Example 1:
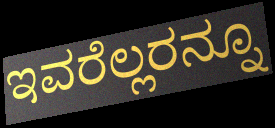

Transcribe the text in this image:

ಇವರೆಲ್ಲರನ್ನೂ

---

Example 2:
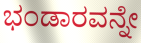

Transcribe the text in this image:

ಭಂಡಾರವನ್ನೇ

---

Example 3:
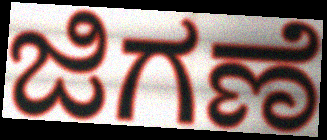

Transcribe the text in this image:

ಜಿಗಣೆ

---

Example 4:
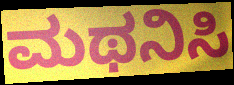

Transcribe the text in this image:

ಮಥನಿಸಿ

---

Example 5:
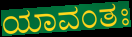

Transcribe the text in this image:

ಯಾವಂತಃ